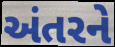
અંતરને